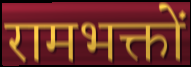
रामभक्तों